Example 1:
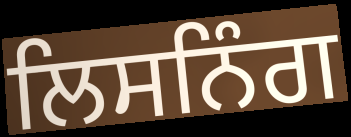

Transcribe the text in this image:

ਲਿਸਨਿੰਗ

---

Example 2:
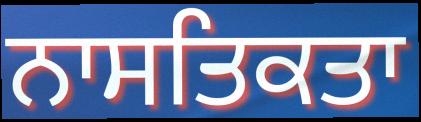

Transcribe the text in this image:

ਨਾਸਤਿਕਤਾ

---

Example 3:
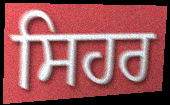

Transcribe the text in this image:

ਸਿਹਰ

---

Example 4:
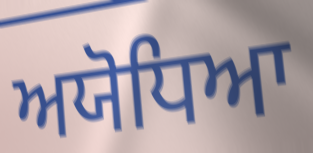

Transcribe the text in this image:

ਅਯੋਧਿਆ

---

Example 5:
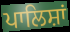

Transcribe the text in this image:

ਪਾਲਿਸ਼ਾਂ